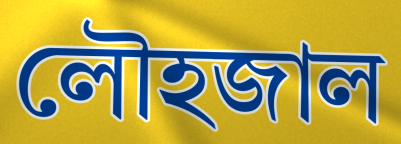
লৌহজাল